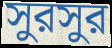
সুরসুর